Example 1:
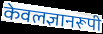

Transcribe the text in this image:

केवलज्ञानरूपी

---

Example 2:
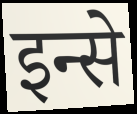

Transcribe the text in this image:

इन्से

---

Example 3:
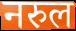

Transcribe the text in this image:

नरुल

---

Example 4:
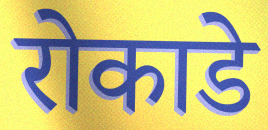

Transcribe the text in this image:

रोकाडे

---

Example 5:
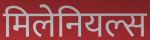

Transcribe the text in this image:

मिलेनियल्स